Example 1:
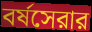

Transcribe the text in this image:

বর্ষসেরার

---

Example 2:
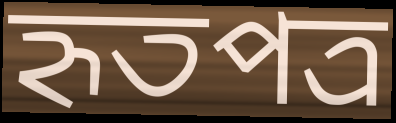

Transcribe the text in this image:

হৃতপত্র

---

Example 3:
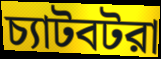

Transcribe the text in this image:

চ্যাটবটরা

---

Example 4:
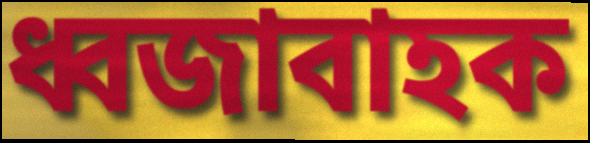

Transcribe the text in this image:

ধ্বজাবাহক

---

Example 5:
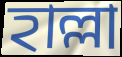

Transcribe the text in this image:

হাল্লা